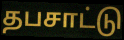
தபசாட்டு